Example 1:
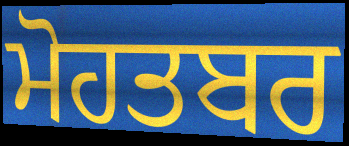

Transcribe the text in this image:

ਮੋਹਤਬਰ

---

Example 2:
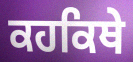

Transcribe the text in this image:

ਕਹਕਿਥੇ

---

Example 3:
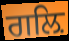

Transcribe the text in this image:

ਗਲ਼ਿ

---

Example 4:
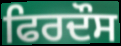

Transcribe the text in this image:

ਫਿਰਦੌਸ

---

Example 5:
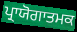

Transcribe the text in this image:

ਪ੍ਰਾਯੋਗਾਤਮਕ